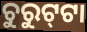
ଚୁରୁଟ୍‍ଟା